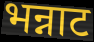
भन्नाट